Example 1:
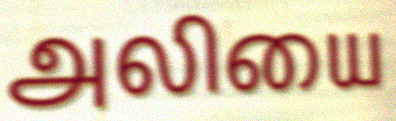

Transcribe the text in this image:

அலியை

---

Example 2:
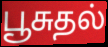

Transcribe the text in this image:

பூசுதல்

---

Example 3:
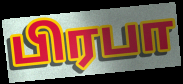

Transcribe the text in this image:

பிரபா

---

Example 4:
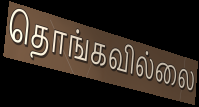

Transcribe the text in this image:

தொங்கவில்லை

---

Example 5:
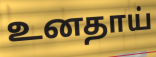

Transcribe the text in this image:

உனதாய்